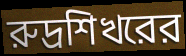
রুদ্রশিখরের